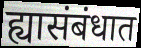
ह्यासंबंधात